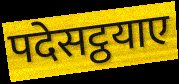
पदेसट्ठयाए